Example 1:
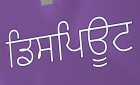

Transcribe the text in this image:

ਡਿਸਪਿਊਟ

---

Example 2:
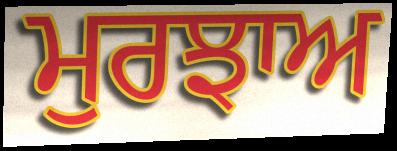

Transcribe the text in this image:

ਮੁਰਝਾਅ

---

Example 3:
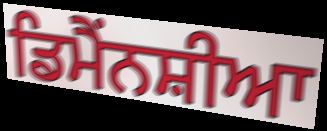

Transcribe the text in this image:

ਡਿਮੈਂਨਸ਼ੀਆ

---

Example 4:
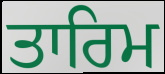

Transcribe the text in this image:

ਤਾਰਿਮ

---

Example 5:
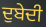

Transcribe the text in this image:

ਦੁਬੇਦੀ